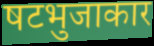
षटभुजाकार